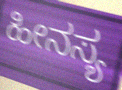
ಹೀನಸ್ಯ